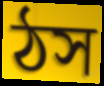
ঠস